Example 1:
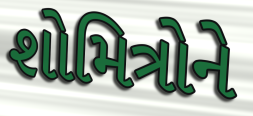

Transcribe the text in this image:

શોમિત્રોને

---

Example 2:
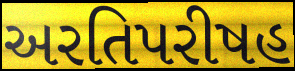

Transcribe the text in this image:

અરતિપરીષહ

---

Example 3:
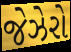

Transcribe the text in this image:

જેઝેરો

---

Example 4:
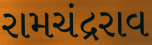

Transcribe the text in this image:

રામચંદ્રરાવ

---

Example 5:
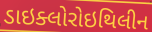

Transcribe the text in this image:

ડાઇક્લોરોઇથિલીન